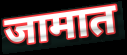
जामात